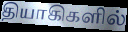
தியாகிகளில்